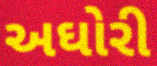
અઘોરી